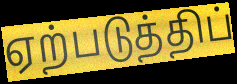
ஏற்படுத்திப்